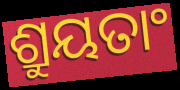
ଶ୍ରୁୟତାଂ